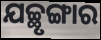
ଯଚ୍ଛୃଙ୍ଗାର